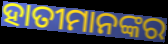
ହାତୀମାନଙ୍କର